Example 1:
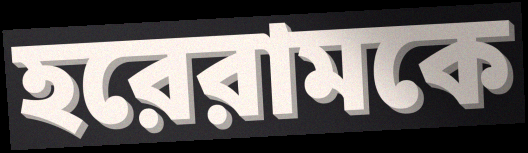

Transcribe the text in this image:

হরেরামকে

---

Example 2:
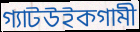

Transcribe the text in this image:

গ্যাটউইকগামী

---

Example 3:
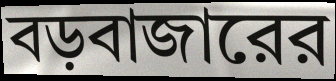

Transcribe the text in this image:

বড়বাজারের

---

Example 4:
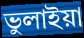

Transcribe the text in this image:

ভুলাইয়া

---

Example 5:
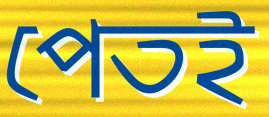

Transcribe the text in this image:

পেতই